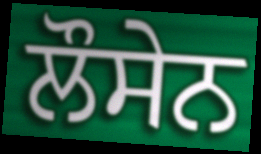
ਲੌਸੇਨ